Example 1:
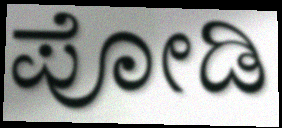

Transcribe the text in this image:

ಪೋಡಿ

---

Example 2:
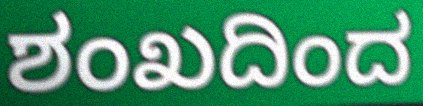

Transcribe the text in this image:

ಶಂಖದಿಂದ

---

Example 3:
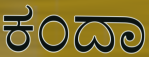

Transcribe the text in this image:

ಕಂದಾ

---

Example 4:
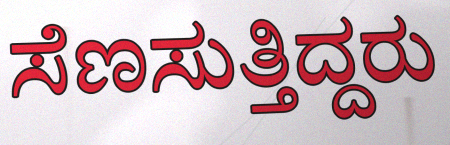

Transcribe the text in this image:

ಸೆಣಸುತ್ತಿದ್ದರು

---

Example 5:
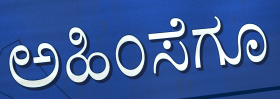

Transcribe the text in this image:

ಅಹಿಂಸೆಗೂ